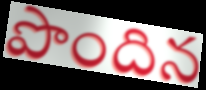
పొందిన